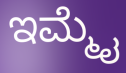
ಇಮ್ಮೈ